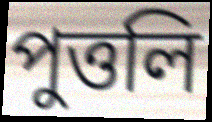
পুত্তলি